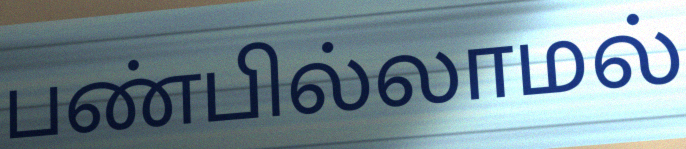
பண்பில்லாமல்